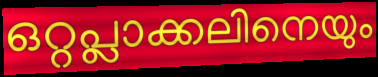
ഒറ്റപ്ലാക്കലിനെയും